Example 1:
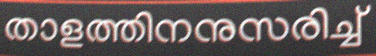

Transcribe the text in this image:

താളത്തിനനുസരിച്ച്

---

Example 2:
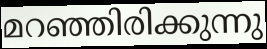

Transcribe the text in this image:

മറഞ്ഞിരിക്കുന്നു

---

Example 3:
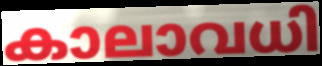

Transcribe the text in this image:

കാലാവധി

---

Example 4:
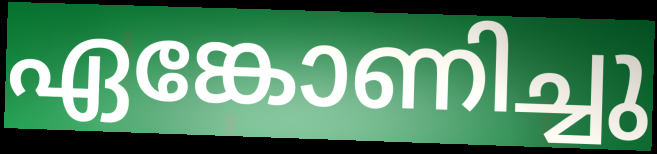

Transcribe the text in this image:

ഏങ്കോണിച്ചു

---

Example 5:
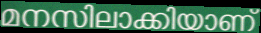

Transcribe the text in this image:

മനസിലാക്കിയാണ്